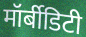
मॉर्बीडिटी